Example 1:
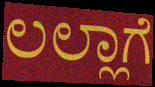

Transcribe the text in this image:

ಲಲ್ಲಾಗೆ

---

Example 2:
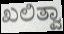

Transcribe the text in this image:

ಖಲಿತ್ವಾ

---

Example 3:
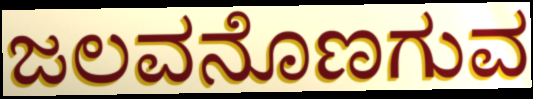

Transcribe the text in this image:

ಜಲವನೊಣಗುವ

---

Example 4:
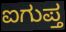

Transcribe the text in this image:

ಐಗುಪ್ತ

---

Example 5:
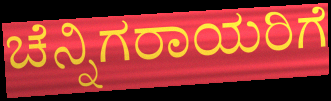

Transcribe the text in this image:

ಚೆನ್ನಿಗರಾಯರಿಗೆ